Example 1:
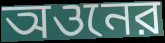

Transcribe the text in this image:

অওনের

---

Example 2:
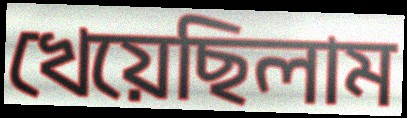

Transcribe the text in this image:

খেয়েছিলাম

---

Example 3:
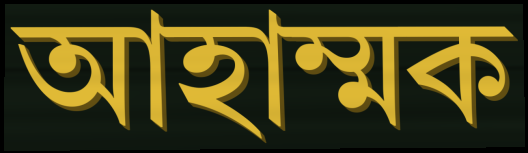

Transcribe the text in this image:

আহাম্মক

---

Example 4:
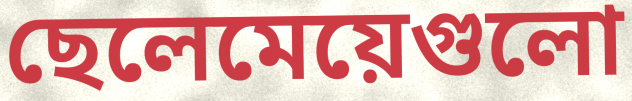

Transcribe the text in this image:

ছেলেমেয়েগুলো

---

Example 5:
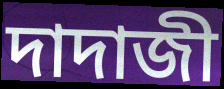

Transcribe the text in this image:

দাদাজী